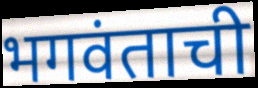
भगवंताची